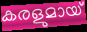
കരളുമായ്